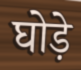
घोड़े